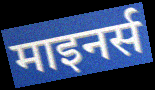
माइनर्स